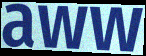
aww